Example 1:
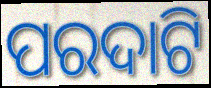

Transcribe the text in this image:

ପରଦାଟି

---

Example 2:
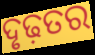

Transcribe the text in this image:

ଦୃଢ଼ତର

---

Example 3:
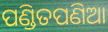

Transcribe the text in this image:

ପଣ୍ଡିତପଣିଆ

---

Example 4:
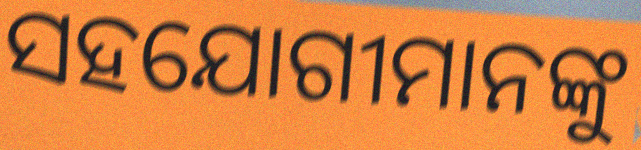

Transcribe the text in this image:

ସହଯୋଗୀମାନଙ୍କୁ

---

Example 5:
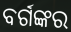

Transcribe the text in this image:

ବର୍ଗଙ୍କର